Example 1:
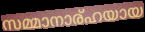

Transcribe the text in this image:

സമ്മാനാര്ഹയായ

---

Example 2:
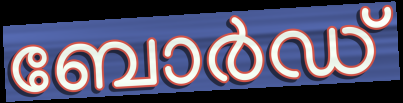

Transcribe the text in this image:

ബോർഡ്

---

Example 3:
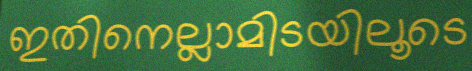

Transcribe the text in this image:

ഇതിനെല്ലാമിടയിലൂടെ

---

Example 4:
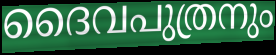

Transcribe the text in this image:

ദൈവപുത്രനും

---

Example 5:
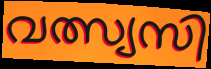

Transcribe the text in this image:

വത്സ്യസി